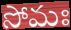
సోమః